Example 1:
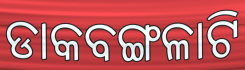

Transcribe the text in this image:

ଡାକବଙ୍ଗଳାଟି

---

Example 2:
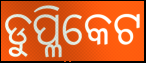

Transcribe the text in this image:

ଡୁପ୍ଳିକେଟ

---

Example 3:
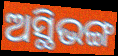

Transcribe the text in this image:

ଅସ୍ଥିଭଙ୍ଗ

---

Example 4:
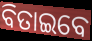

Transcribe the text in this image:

ବିତାଇବେ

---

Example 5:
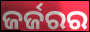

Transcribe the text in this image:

ଜର୍ଜରର